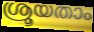
ശ്രൂയതാം